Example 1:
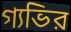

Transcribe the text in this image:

গ্যভির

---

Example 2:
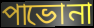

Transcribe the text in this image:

পাভোনা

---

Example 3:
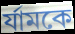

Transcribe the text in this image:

র্যামকে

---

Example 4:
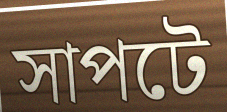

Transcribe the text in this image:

সাপটে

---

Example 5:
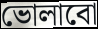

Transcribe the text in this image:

ভোলাবো